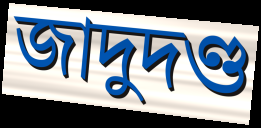
জাদুদণ্ড